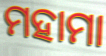
ମହାମା